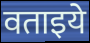
वताइये